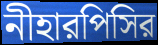
নীহারপিসির